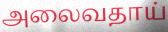
அலைவதாய்